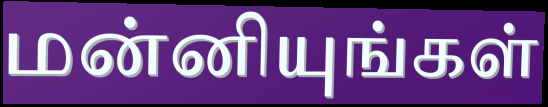
மன்னியுங்கள்